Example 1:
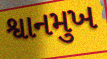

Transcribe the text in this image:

શ્વાનમુખ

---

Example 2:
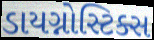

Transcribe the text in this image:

ડાયગ્નોસ્ટિક્સ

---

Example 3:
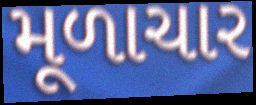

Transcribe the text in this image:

મૂળાચાર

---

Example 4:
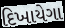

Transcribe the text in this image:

દિખાયેગા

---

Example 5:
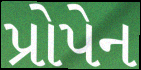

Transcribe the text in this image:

પ્રોપેન